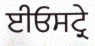
ਈਓਸਟ੍ਰੇ